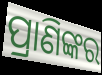
ପ୍ରାଣିଙ୍କର